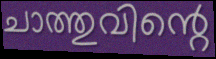
ചാത്തുവിന്റെ